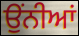
ਉੰਨੀਆਂ